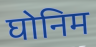
घोनिम